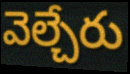
వెల్చేరు